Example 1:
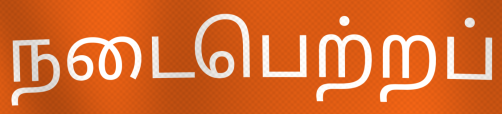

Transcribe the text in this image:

நடைபெற்றப்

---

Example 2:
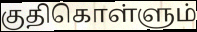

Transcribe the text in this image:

குதிகொள்ளும்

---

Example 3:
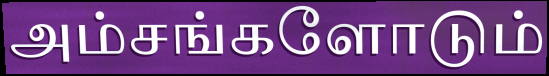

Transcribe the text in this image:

அம்சங்களோடும்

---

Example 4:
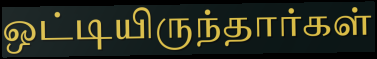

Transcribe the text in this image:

ஒட்டியிருந்தார்கள்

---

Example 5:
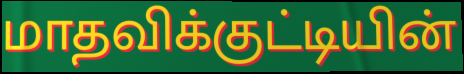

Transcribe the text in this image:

மாதவிக்குட்டியின்